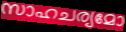
സാഹചര്യമോ